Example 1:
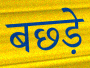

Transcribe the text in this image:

बछ्ड़े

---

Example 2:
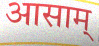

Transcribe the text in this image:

आसाम्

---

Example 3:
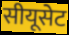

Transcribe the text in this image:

सीयूसेट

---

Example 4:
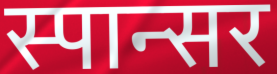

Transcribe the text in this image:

स्पान्सर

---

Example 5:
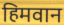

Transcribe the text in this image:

हिमवान